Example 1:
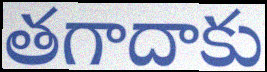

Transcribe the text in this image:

తగాదాకు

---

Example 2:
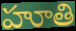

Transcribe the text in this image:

హూతి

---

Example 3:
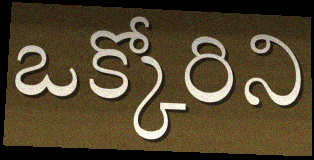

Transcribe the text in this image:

ఒక్కోరిని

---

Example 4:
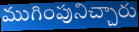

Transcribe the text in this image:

ముగింపునిచ్చారు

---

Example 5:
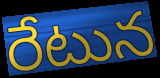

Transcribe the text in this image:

రేటున